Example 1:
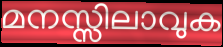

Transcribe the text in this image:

മനസ്സിലാവുക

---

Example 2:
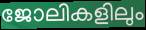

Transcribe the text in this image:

ജോലികളിലും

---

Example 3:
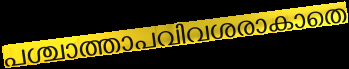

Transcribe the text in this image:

പശ്ചാത്താപവിവശരാകാതെ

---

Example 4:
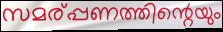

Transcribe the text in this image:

സമര്പ്പണത്തിന്റെയും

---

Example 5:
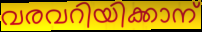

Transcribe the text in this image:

വരവറിയിക്കാന്